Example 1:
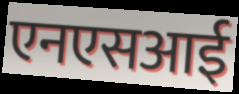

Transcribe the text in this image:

एनएसआई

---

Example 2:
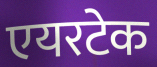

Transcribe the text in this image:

एयरटेक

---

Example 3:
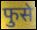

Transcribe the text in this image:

फुसे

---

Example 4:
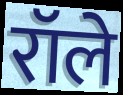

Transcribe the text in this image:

रॉले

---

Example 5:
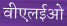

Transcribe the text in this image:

वीएलईओ